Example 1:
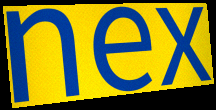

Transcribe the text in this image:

nex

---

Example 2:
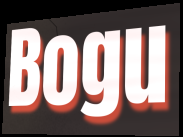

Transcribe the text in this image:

Bogu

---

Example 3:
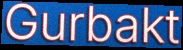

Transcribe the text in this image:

Gurbakt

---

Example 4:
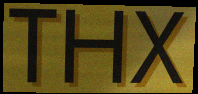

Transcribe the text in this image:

THX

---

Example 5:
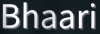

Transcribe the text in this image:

Bhaari